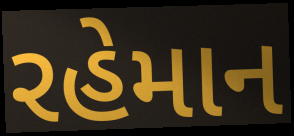
રહેમાન